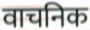
वाचनिक